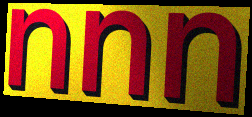
nnn